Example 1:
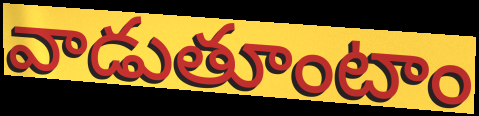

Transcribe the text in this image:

వాడుతూంటాం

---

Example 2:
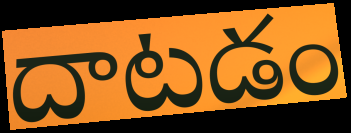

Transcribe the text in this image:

దాటడం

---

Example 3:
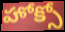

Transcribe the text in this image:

హోక్సో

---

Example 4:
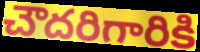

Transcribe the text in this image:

చౌదరిగారికి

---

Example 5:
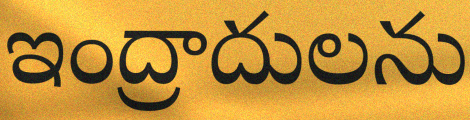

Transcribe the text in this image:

ఇంద్రాదులను